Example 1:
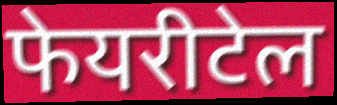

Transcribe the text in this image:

फेयरीटेल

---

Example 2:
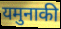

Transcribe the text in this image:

यमुनाकी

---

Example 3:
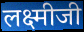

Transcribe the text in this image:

लक्ष्मीजी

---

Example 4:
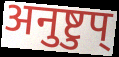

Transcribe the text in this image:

अनुष्टुप्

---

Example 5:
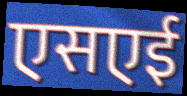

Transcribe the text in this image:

एसएई